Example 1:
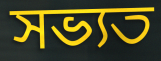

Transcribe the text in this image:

সভ্যত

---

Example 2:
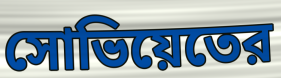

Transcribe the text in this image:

সোভিয়েতের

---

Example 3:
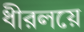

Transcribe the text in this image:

ধীরলয়ে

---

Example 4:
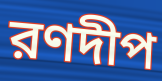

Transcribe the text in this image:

রণদীপ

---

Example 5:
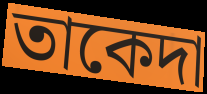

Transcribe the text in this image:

তাকেদা